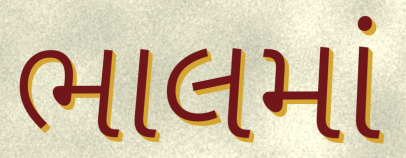
ભાલમાં